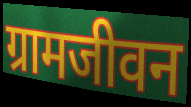
ग्रामजीवन